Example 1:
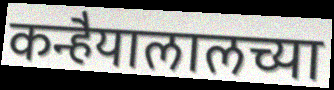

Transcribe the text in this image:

कन्हैयालालच्या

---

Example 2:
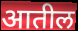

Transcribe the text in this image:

आतील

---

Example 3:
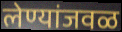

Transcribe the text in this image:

लेण्यांजवळ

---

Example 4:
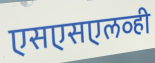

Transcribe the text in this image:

एसएसएलव्ही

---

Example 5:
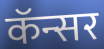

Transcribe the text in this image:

कॅन्सर